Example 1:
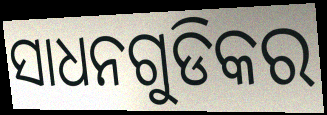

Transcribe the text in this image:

ସାଧନଗୁଡିକର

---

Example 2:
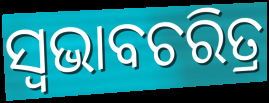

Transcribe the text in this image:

ସ୍ବଭାବଚରିତ୍ର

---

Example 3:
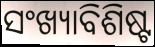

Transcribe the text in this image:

ସଂଖ୍ୟାବିଶିଷ୍ଟ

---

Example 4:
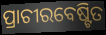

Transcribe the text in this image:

ପ୍ରାଚୀରବେଷ୍ଟିତ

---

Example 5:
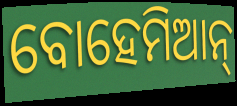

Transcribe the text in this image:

ବୋହେମିଆନ୍